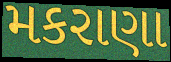
મકરાણા